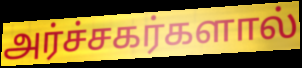
அர்ச்சகர்களால்